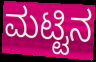
ಮಟ್ಟಿನ